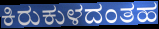
ಕಿರುಕುಳದಂತಹ